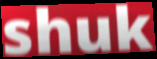
shuk